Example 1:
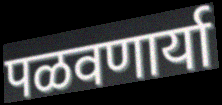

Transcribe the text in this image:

पळवणार्या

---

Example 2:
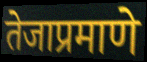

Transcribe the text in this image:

तेजाप्रमाणे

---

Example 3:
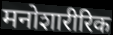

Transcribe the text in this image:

मनोशारीरिक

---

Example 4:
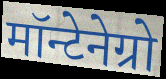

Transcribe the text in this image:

मॉन्टेनेग्रो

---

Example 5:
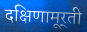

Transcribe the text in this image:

दक्षिणामूर्ती